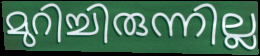
മുറിച്ചിരുന്നില്ല